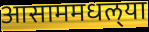
आसाममधल्या